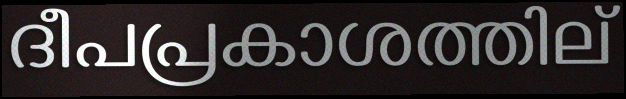
ദീപപ്രകാശത്തില്